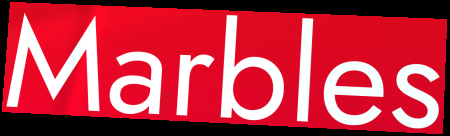
Marbles